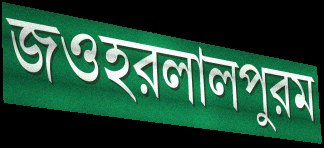
জওহরলালপুরম